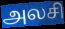
அலசி